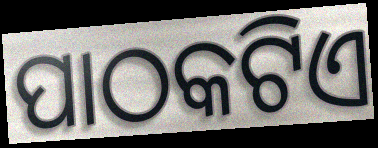
ପାଠକଟିଏ